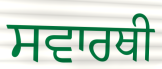
ਸਵਾਰਥੀ